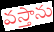
వస్తాను